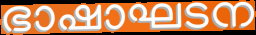
ഭാഷാഘടന